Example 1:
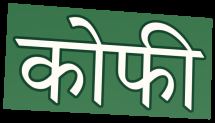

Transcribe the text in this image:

कोफी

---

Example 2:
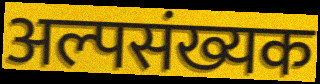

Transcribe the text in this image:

अल्‍पसंख्‍यक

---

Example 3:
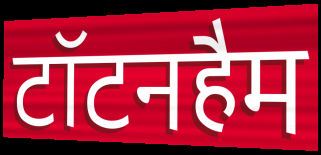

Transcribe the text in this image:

टॉटनहैम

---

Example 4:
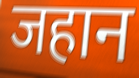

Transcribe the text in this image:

जहान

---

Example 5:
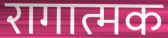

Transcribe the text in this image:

रागात्मक